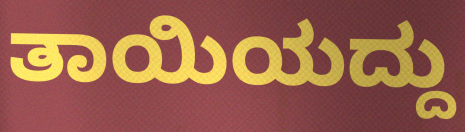
ತಾಯಿಯದ್ದು